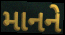
માનને